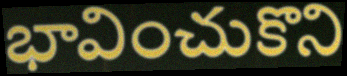
భావించుకొని